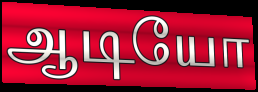
ஆடியோ